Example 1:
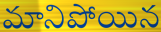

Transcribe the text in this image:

మానిపోయిన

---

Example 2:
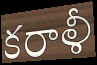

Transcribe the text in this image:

కరాళీ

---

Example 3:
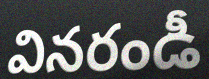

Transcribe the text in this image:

వినరండీ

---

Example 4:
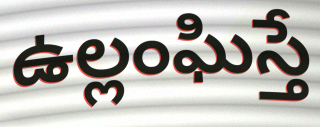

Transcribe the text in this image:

ఉల్లంఘిస్తే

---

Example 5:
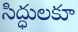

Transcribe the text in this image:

సిద్ధులకూ